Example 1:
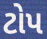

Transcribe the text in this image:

ટોપ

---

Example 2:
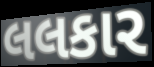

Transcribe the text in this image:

લલકાર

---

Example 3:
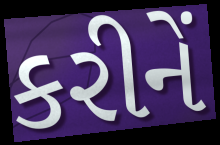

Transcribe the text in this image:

કરીનેં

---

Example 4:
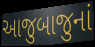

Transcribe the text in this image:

આજુબાજુનાં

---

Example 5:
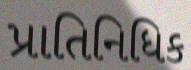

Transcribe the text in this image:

પ્રાતિનિધિક